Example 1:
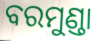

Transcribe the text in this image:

ବରମୁଣ୍ଡା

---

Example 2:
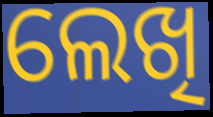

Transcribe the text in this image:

ଲେଖି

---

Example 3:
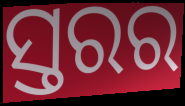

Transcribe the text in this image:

ସ୍ତରର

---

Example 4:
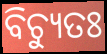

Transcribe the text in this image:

ବିଚ୍ୟୁତଃ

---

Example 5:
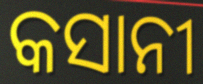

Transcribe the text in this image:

କସାନୀ